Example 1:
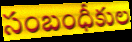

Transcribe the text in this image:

సంబంధీకుల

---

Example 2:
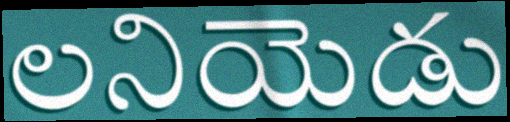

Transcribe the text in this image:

లనియెడు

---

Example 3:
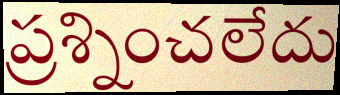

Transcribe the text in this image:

ప్రశ్నించలేదు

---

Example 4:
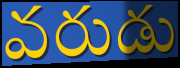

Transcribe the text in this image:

వరుడు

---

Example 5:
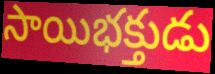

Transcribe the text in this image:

సాయిభక్తుడు